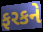
ફરકને